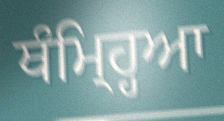
ਥੰਮ੍ਹ੍ਹਿਆ